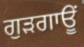
ਗੁੜਗਾਊਂ